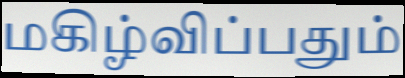
மகிழ்விப்பதும்